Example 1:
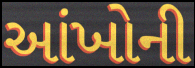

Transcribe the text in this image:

આંખોની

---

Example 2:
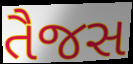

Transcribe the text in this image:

તૈજસ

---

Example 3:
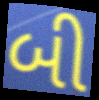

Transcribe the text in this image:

બી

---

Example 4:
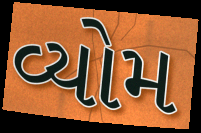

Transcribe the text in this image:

વ્યોમ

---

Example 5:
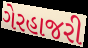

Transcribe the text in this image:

ગેરહાજરી